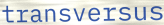
transversus